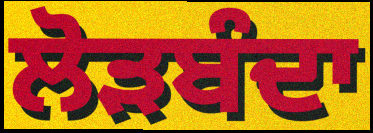
ਲੋੜਬੰਦਾ